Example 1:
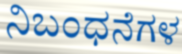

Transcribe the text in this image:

ನಿಬಂಧನೆಗಳ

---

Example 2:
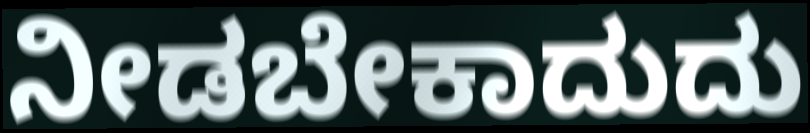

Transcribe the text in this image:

ನೀಡಬೇಕಾದುದು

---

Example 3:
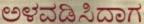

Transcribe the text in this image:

ಅಳವಡಿಸಿದಾಗ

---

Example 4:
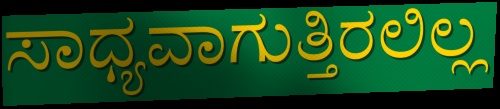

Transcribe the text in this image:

ಸಾಧ್ಯವಾಗುತ್ತಿರಲಿಲ್ಲ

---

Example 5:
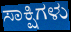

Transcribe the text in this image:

ಸಾಕ್ಷಿಗಳು